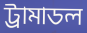
ট্রামাডল